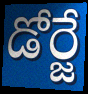
డోర్జే